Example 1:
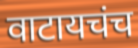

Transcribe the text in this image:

वाटायचंच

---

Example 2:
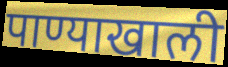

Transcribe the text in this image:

पाण्याखाली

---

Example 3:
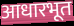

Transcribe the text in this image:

आधारभूत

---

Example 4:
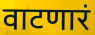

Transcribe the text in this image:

वाटणारं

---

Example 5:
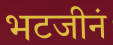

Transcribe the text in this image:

भटजीनं